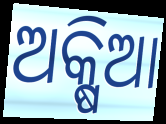
ଅକ୍ଷିଆ